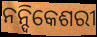
ନନ୍ଦିକେଶରୀ